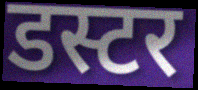
डस्टर